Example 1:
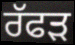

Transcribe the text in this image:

ਰੱਫੜ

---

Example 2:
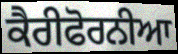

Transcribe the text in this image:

ਕੈਰੀਫੋਰਨੀਆ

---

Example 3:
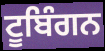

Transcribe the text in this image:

ਟੂਬਿੰਗਨ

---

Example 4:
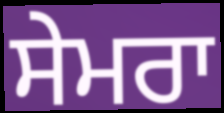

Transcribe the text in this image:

ਸੇਮਰਾ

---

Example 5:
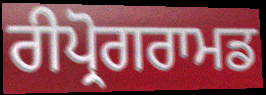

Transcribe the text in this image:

ਰੀਪ੍ਰੋਗਰਾਮਡ